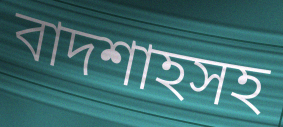
বাদশাহসহ